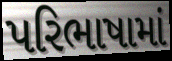
પરિભાષામાં